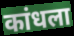
कांधला